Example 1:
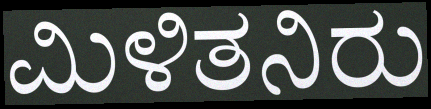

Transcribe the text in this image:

ಮಿಳಿತನಿರು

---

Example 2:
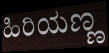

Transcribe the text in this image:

ಹಿರಿಯಣ್ಣ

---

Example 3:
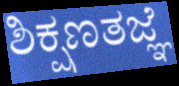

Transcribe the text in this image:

ಶಿಕ್ಷಣತಜ್ಞೆ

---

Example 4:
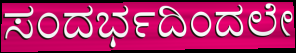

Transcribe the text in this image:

ಸಂದರ್ಭದಿಂದಲೇ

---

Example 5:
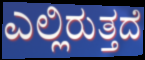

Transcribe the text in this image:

ಎಲ್ಲಿರುತ್ತದೆ